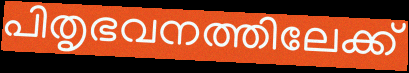
പിതൃഭവനത്തിലേക്ക്